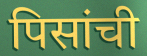
पिसांची